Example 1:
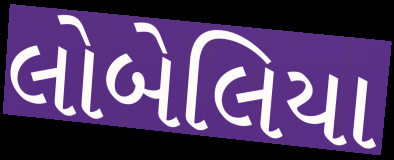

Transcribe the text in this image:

લોબેલિયા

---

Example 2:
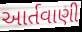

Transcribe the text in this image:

આર્તવાણી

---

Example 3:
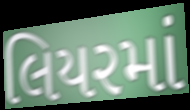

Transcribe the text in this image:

લિયરમાં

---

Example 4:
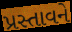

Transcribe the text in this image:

પ્રસ્તાવને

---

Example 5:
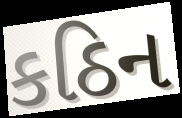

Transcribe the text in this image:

કઠિન